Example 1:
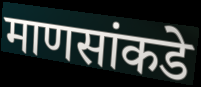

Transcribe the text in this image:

माणसांकडे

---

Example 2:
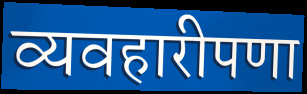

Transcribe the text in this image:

व्यवहारीपणा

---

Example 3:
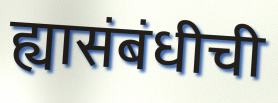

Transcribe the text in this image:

ह्यासंबंधीची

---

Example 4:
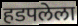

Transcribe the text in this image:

हडपलेला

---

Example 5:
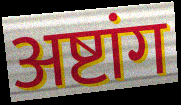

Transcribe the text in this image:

अष्टांग